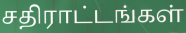
சதிராட்டங்கள்